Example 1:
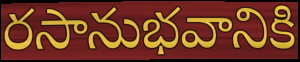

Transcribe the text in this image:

రసానుభవానికి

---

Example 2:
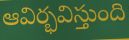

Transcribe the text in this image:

ఆవిర్భవిస్తుంది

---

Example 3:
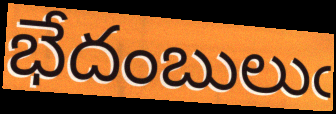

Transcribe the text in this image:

భేదంబులుఁ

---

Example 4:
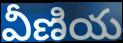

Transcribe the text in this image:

వీణియ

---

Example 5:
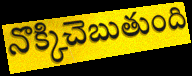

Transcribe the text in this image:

నొక్కిచెబుతుంది